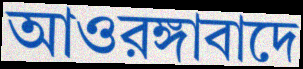
আওরঙ্গাবাদে